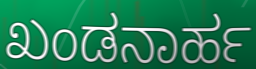
ಖಂಡನಾರ್ಹ